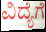
ವಿದ್ಯೆಗೆ